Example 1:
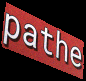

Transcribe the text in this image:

pathe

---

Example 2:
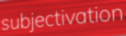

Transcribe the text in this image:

subjectivation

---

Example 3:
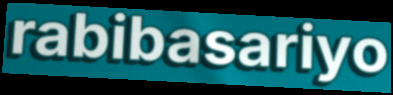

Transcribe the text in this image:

rabibasariyo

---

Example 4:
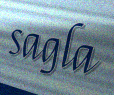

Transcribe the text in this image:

sagla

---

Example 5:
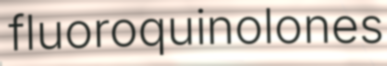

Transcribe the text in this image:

fluoroquinolones